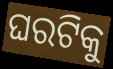
ଘରଟିକୁ